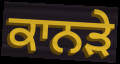
ਕਾਨੜੇ